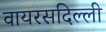
वायरसदिल्ली